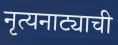
नृत्यनाट्याची